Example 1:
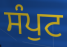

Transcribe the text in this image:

ਸੰਪੁਟ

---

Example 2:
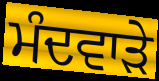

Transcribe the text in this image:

ਮੰਦਵਾੜੇ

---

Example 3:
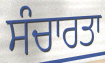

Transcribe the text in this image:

ਸੰਚਾਰਤਾ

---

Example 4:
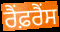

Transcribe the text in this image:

ਰੈਂਫ਼ਰੈਂਸ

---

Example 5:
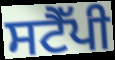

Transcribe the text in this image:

ਸਟੈੱਪੀ